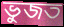
ভুজত